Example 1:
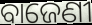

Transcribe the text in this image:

ବାଜେଣୀ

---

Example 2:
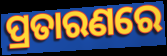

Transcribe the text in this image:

ପ୍ରତାରଣରେ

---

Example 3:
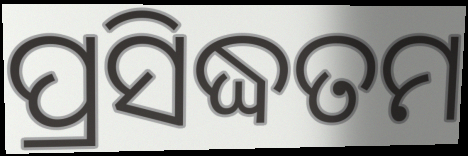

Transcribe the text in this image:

ପ୍ରସିଦ୍ଧତମ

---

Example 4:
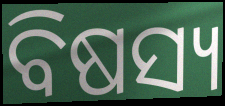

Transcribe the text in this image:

ବିଷସ୍ୟ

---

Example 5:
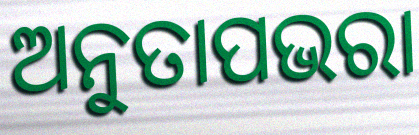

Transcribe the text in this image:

ଅନୁତାପଭରା